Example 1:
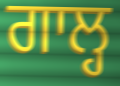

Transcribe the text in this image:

ਗਾਲ੍ਹ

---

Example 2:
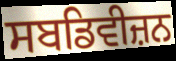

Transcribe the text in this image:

ਸਬਡਿਵੀਜ਼ਨ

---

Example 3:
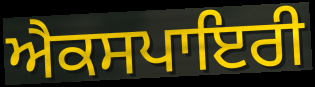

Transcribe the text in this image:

ਐਕਸਪਾਇਰੀ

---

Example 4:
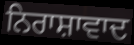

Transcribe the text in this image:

ਨਿਰਾਸ਼ਾਵਾਦ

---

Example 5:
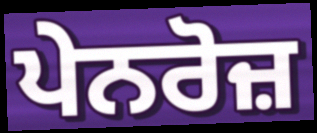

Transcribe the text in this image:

ਪੇਨਰੋਜ਼